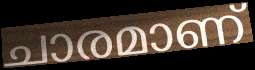
ചാരമാണ്